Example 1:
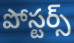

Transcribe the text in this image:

పోస్టర్స్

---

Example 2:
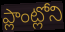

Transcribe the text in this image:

ప్లాంట్లోని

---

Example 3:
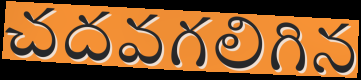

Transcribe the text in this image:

చదవగలిగిన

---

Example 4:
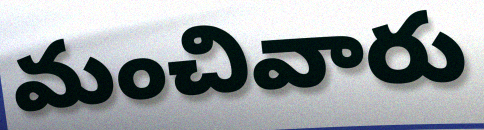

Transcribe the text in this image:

మంచివారు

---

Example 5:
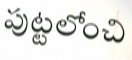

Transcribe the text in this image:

పుట్టలోంచి